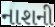
નાશની